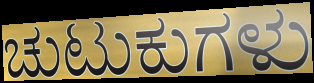
ಚುಟುಕುಗಳು